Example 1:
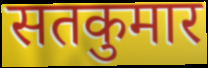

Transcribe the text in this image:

सतकुमार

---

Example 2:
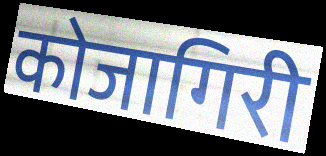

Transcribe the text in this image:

कोजागिरी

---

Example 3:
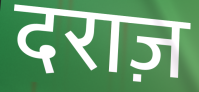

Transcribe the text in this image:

दराज़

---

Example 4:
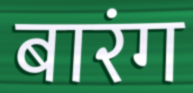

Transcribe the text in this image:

बारंग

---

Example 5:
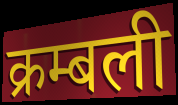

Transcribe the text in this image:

क्रम्बली